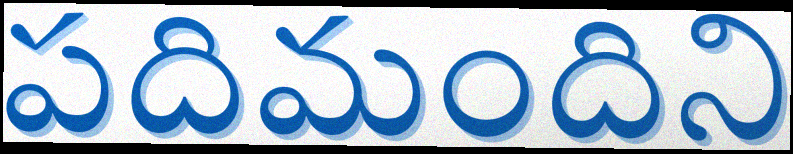
పదిమందిని